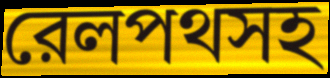
রেলপথসহ